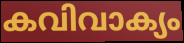
കവിവാക്യം